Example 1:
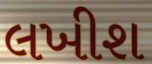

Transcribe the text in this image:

લખીશ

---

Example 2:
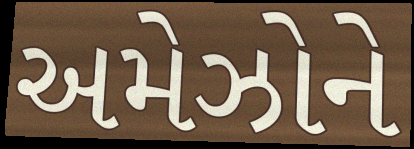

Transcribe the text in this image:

અમેઝોને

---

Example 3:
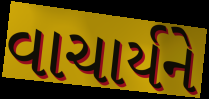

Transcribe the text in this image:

વાચાર્યને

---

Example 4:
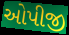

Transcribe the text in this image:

ઓપીજી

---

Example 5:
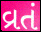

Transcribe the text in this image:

વ્રતં